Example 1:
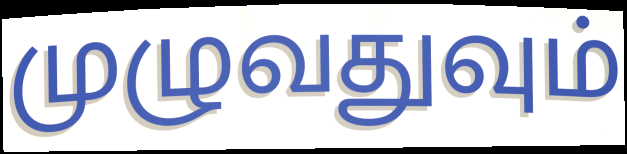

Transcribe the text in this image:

முழுவதுவும்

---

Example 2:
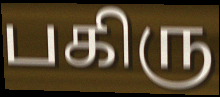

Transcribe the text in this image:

பகிரு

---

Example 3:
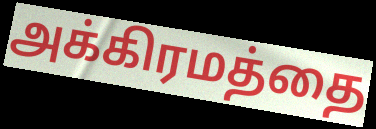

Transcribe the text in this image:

அக்கிரமத்தை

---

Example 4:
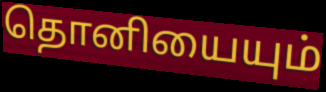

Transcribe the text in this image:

தொனியையும்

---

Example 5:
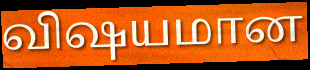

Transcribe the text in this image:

விஷயமான